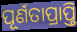
ପୂର୍ଣତାପ୍ରାପ୍ତି